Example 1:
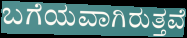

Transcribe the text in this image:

ಬಗೆಯವಾಗಿರುತ್ತವೆ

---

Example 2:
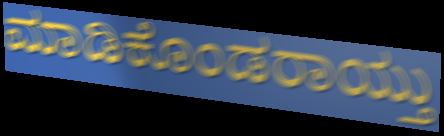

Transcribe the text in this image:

ಮಾಡಿಕೊಂಡರಾಯ್ತು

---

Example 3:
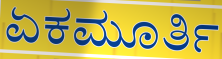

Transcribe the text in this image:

ಏಕಮೂರ್ತಿ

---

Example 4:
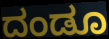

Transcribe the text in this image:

ದಂಡೂ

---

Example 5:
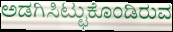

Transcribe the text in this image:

ಅಡಗಿಸಿಟ್ಟುಕೊಂಡಿರುವ